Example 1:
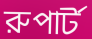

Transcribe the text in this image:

রুপার্ট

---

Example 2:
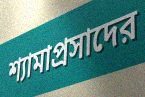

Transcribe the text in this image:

শ্যামাপ্রসাদের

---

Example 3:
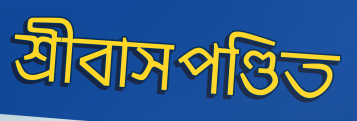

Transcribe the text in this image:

শ্রীবাসপণ্ডিত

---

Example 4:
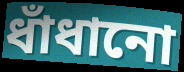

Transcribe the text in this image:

ধাঁধানো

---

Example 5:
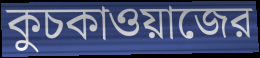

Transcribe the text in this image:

কুচকাওয়াজের